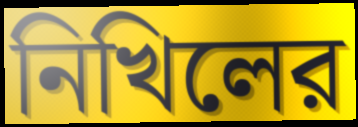
নিখিলের